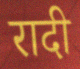
रादी